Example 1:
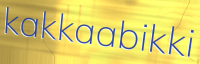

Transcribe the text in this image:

kakkaabikki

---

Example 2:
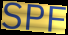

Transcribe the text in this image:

SPF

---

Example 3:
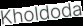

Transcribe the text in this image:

Kholdoda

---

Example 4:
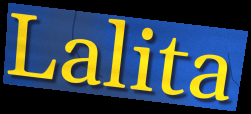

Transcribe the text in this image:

Lalita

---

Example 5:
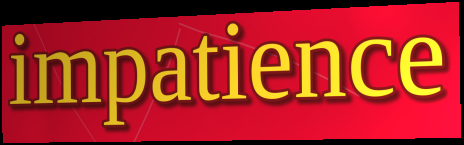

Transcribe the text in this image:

impatience